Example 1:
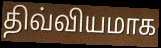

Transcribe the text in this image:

திவ்வியமாக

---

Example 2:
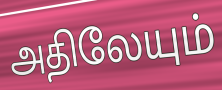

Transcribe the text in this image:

அதிலேயும்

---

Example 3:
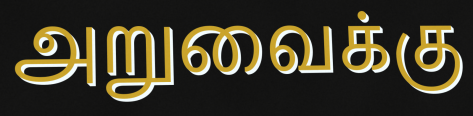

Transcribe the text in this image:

அறுவைக்கு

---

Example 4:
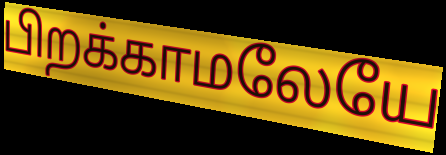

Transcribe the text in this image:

பிறக்காமலேயே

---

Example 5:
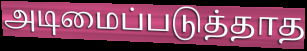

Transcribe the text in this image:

அடிமைப்படுத்தாத